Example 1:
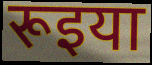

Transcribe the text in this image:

रूइया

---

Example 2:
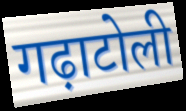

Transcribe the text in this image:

गढ़ाटोली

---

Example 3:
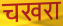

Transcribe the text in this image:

चखरा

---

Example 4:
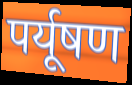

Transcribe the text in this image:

पर्यूषण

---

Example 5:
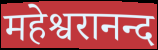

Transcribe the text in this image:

महेश्वरानन्द